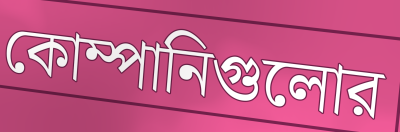
কোম্পানিগুলোর